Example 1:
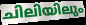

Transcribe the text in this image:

ചിലിയിലും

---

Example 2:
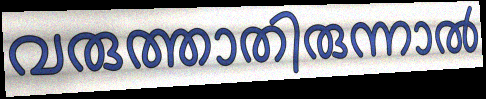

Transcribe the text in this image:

വരുത്താതിരുന്നാൽ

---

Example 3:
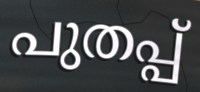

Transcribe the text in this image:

പുതപ്പ്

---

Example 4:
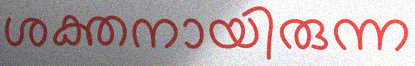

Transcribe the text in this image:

ശക്തനായിരുന്ന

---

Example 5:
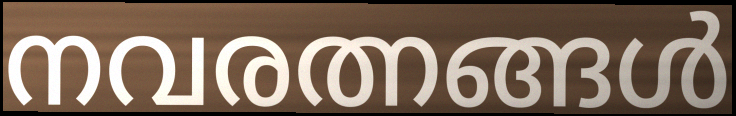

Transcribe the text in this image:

നവരത്നങ്ങൾ